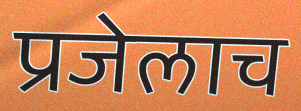
प्रजेलाच